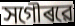
সগৌৰৱে